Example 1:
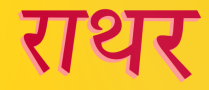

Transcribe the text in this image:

राथर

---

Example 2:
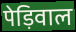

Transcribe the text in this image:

पेड़िवाल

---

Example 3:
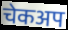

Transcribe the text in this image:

चेकअप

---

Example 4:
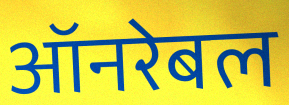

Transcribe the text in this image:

ऑनरेबल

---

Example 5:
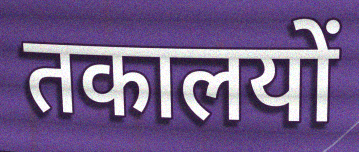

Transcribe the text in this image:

तकालयों